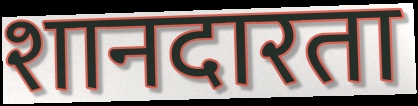
शानदारता